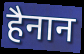
हैनान